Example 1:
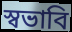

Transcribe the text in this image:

স্বভাবি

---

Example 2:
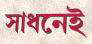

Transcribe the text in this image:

সাধনেই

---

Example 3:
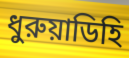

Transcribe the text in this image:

ধুরুয়াডিহি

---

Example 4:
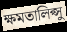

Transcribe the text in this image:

ক্ষমতালিপ্সু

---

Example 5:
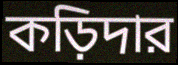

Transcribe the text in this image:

কড়িদার